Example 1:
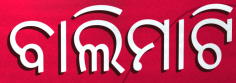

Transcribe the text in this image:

ବାଲିମାଟି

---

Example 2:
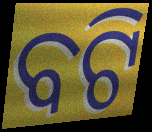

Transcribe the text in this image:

ବଟି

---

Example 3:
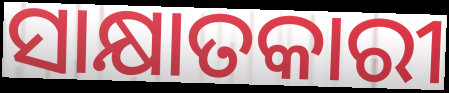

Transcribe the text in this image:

ସାକ୍ଷାତକାରୀ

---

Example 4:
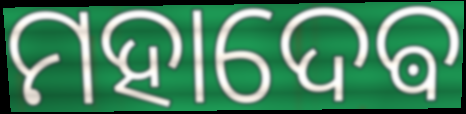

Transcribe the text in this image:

ମହାଦେଵ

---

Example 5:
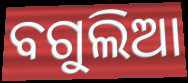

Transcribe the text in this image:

ବଗୁଲିଆ